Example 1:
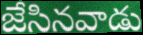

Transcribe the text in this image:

జేసినవాడు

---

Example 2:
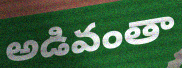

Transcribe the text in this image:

అడివంతా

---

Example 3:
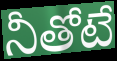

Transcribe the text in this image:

నీతోటే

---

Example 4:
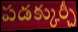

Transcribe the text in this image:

పడక్కుర్చీ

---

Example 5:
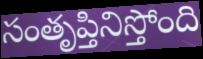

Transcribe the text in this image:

సంతృప్తినిస్తోంది